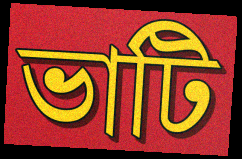
ভাটি